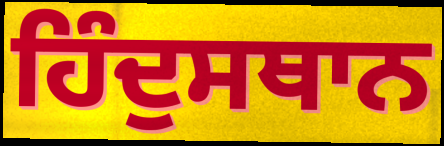
ਹਿੰਦੁਸਥਾਨ